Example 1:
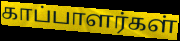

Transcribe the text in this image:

காப்பாளர்கள்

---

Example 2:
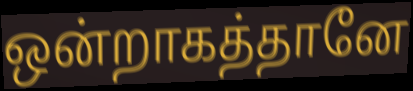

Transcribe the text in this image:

ஒன்றாகத்தானே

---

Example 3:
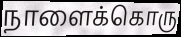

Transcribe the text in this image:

நாளைக்கொரு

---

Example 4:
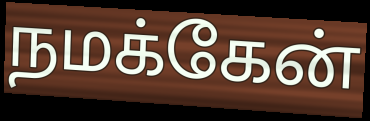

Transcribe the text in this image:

நமக்கேன்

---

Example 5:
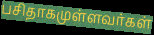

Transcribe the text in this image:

பசிதாகமுள்ளவர்கள்